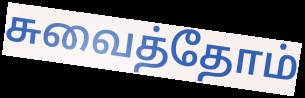
சுவைத்தோம்